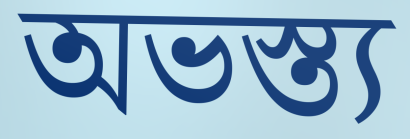
অভস্ত্য